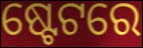
ଷ୍ଟେଟରେ